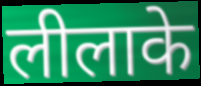
लीलाके